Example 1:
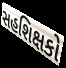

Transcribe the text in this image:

સહશિક્ષકો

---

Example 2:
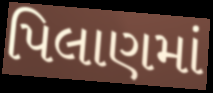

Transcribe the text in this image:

પિલાણમાં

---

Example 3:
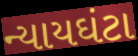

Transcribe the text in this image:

ન્યાયઘંટા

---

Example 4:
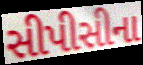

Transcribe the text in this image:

સીપીસીના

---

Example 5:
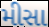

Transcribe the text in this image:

મીસા